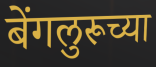
बेंगलुरूच्या